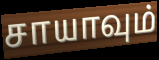
சாயாவும்